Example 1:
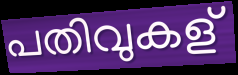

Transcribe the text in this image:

പതിവുകള്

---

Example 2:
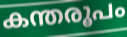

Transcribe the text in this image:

കന്തരൂപം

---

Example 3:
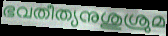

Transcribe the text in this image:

ഭവതീത്യനുശുശ്രുമ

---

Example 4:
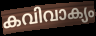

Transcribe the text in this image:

കവിവാക്യം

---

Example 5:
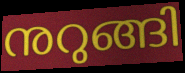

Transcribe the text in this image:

നുറുങ്ങി